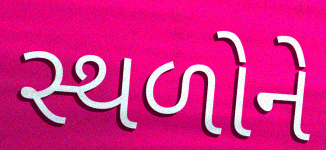
સ્થળોને